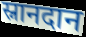
स्नानदान